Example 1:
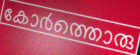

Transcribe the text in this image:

കോർത്തൊരു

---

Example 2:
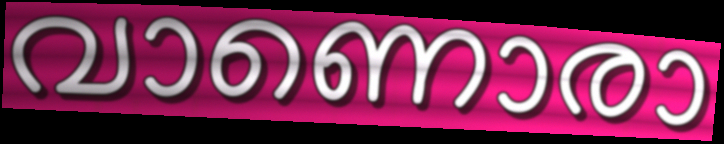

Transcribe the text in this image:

വാണൊരാ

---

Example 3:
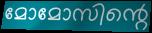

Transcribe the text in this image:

മോമോസിന്റെ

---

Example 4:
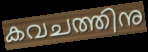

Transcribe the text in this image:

കവചത്തിനു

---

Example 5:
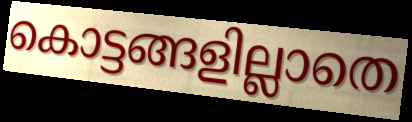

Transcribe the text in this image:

കൊട്ടങ്ങളില്ലാതെ